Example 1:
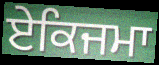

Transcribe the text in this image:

ਏਕਿਜਮਾ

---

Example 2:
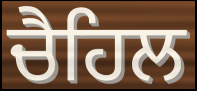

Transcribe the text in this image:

ਚੈਹਿਲ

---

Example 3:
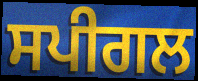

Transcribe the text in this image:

ਸਪੀਗਲ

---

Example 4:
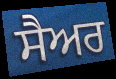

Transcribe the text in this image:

ਸੈਅਰ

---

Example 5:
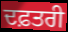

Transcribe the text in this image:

ਦਫ਼ਤਰੀ